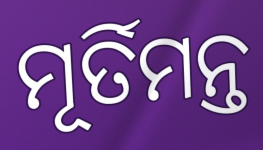
ମୂର୍ତିମନ୍ତ